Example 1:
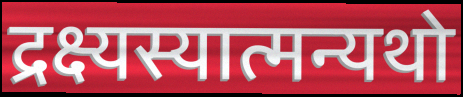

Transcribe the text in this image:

द्रक्ष्यस्यात्मन्यथो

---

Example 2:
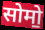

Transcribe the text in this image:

सोमो॒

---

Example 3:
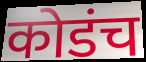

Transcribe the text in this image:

कोडंच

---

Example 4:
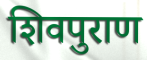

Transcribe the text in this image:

शिवपुराण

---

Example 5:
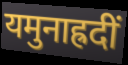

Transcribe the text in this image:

यमुनाह्रदीं